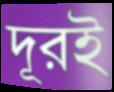
দূরই